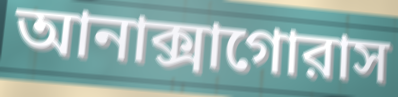
আনাক্সাগোরাস